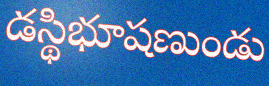
డస్థిభూషణుండు